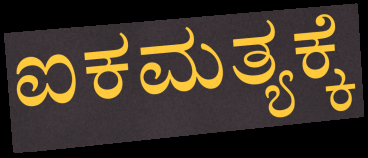
ಐಕಮತ್ಯಕ್ಕೆ